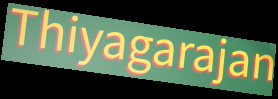
Thiyagarajan